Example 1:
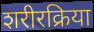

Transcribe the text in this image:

शरीरक्रिया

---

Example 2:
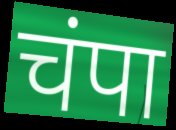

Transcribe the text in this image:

चंपा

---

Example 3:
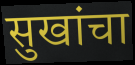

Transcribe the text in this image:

सुखांचा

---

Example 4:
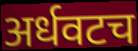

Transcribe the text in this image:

अर्धवटच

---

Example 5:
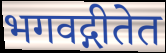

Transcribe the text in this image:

भगवद्गीतेत